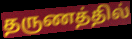
தருணத்தில்